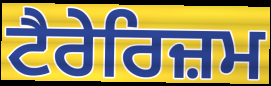
ਟੈਰੇਰਿਜ਼ਮ